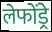
लेफोंड्रे